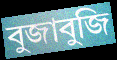
বুজাবুজি